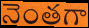
నెంతగా